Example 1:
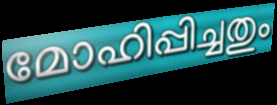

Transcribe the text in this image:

മോഹിപ്പിച്ചതും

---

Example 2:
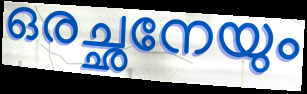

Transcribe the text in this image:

ഒരച്ഛനേയും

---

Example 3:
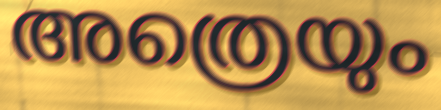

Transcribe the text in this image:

അത്രെയും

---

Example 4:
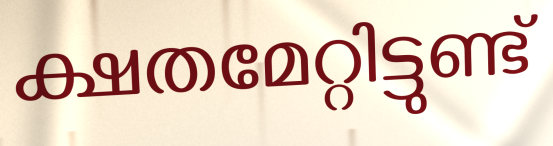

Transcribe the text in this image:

ക്ഷതമേറ്റിട്ടുണ്ട്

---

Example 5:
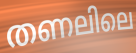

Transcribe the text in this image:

തണലിലെ